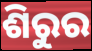
ଶିରୁର